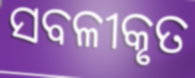
ସବଳୀକୃତ